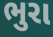
ભુરા